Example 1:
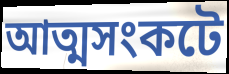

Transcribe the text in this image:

আত্মসংকটে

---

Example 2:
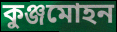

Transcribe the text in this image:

কুঞ্জমোহন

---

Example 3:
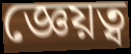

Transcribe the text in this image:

জ্ঞেয়ত্ব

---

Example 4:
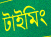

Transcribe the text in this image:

টাইমিং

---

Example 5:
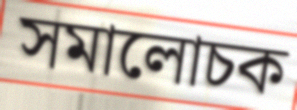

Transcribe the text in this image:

সমালোচক